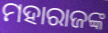
ମହାରାଜଙ୍କ